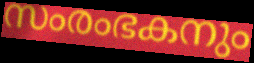
സംരംഭകനും